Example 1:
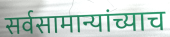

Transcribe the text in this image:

सर्वसामान्यांच्याच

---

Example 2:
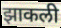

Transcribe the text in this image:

झाकली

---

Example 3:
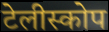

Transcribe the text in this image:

टेलीस्कोप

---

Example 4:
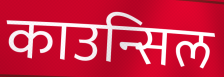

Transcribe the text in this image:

काउन्सिल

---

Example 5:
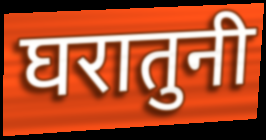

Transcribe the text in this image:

घरातुनी